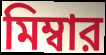
মিম্বার